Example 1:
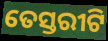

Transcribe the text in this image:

ତେସ୍ତରୀଟି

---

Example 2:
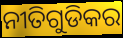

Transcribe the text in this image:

ନୀତିଗୁଡିକର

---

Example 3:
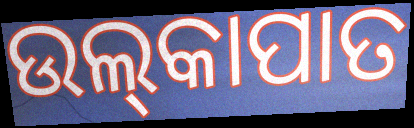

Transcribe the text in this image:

ଉଲ୍‍କାପାତ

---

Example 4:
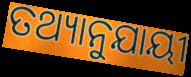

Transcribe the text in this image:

ତଥ୍ୟାନୁଯାୟୀ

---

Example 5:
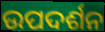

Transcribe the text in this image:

ଉପଦର୍ଶନ